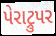
પેરાટ્રુપર